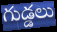
గుడ్డలు